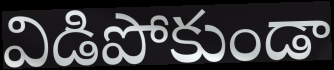
విడిపోకుండా